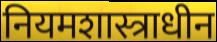
नियमशास्त्राधीन